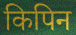
किपिन